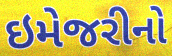
ઇમેજરીનો